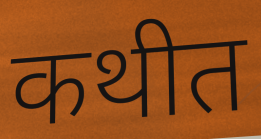
कथीत